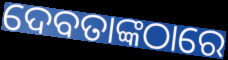
ଦେବତାଙ୍କଠାରେ